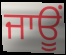
ਜਾਊਂ